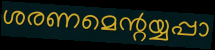
ശരണമെന്റയ്യപ്പാ